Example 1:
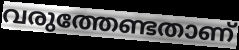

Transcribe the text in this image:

വരുത്തേണ്ടതാണ്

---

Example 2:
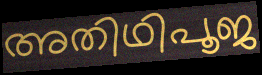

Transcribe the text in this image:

അതിഥിപൂജ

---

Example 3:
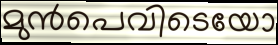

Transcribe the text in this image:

മുൻപെവിടെയോ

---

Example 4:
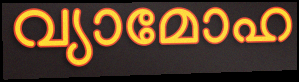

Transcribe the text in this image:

വ്യാമോഹ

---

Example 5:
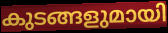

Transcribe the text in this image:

കുടങ്ങളുമായി